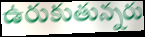
ఉరుకుతున్నరు